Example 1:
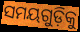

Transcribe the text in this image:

ସମୟଗୁଡ଼ିକୁ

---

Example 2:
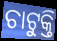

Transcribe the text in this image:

ଚାଟୁକ୍ତି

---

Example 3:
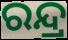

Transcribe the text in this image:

ରନ୍ଦ୍ର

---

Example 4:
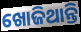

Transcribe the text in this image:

ଖୋଜିଥାନ୍ତି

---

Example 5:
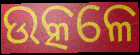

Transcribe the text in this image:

ଉତ୍କଳେ